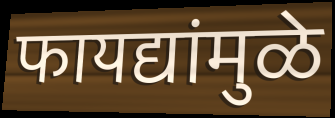
फायद्यांमुळे